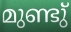
മുണ്ടു്